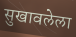
सुखावलेला